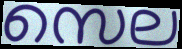
സെല